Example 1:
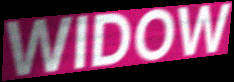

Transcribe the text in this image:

WIDOW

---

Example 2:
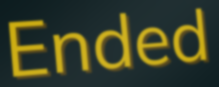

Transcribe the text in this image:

Ended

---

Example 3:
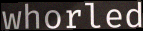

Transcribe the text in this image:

whorled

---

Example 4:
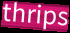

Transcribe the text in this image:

thrips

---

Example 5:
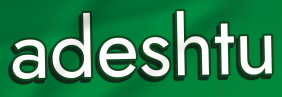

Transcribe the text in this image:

adeshtu